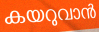
കയറുവാൻ